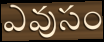
ఎవుసం